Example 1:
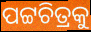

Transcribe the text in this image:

ପଟ୍ଟଚିତ୍ରକୁ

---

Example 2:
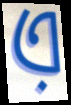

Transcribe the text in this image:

ଏ଼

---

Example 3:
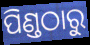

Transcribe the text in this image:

ପିଣ୍ଡଠାରୁ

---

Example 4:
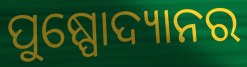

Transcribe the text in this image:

ପୁଷ୍ପୋଦ୍ୟାନର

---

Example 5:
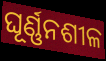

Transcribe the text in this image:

ଘୂର୍ଣ୍ଣନଶୀଳ